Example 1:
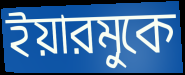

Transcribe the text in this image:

ইয়ারমুকে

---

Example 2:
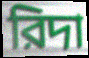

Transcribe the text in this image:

রিদা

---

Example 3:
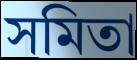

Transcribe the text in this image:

সমিতা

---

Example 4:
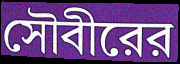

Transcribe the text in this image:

সৌবীরের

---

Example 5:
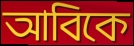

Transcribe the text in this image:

আবিকে